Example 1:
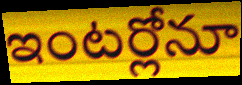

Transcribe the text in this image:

ఇంటర్లోనూ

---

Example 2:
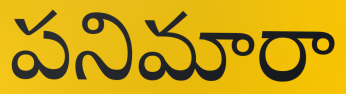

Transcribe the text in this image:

పనిమారా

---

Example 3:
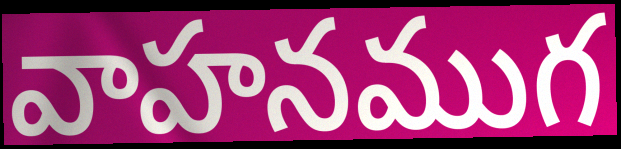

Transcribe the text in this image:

వాహనముగ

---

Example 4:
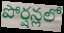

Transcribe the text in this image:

పోర్షన్లలో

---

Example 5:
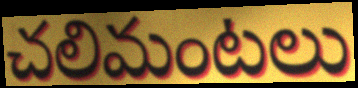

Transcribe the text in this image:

చలిమంటలు